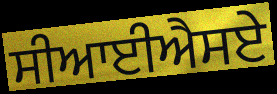
ਸੀਆਈਐਸਏ